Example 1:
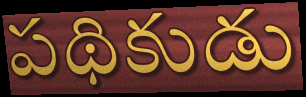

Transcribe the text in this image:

పథికుడు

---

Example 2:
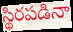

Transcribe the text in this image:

స్థిరపడినా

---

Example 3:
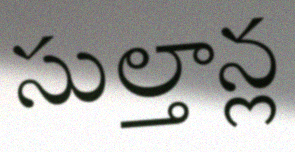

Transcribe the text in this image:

సుల్తాన్ల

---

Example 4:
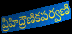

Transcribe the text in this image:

వ్రీహిద్రౌణికపర్వణి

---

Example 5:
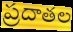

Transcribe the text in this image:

ప్రదాతల